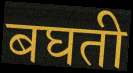
बघती